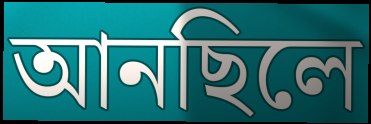
আনছিলে